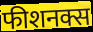
फीशनक्स